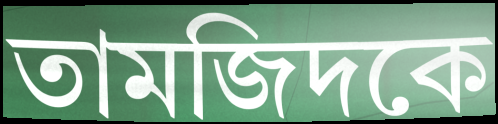
তামজিদকে